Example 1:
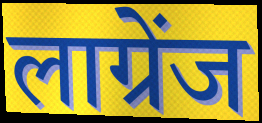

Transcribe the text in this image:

लाग्रेंज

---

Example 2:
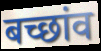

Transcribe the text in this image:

बच्छांव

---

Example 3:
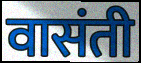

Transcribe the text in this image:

वासंती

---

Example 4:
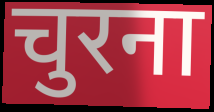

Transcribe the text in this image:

चुरना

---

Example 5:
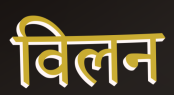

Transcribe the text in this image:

विलन